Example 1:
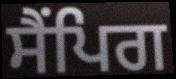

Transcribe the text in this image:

ਸੈਂਪਿਗ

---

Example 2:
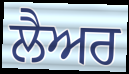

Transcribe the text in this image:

ਲੈਅਰ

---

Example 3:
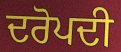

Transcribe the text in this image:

ਦਰੋਪਦੀ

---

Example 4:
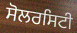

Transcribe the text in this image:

ਸੋਲਰਸਿਟੀ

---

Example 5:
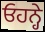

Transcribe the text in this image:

ਓਹਨ੍ਹੇ